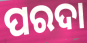
ପରଦା